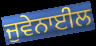
ਜੁਵੇਨਾਈਲ